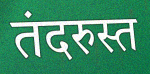
तंदरुस्त